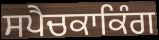
ਸਪੈਚਕਾਕਿੰਗ